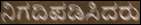
ನಿಗದಿಪಡಿಸಿದರು